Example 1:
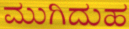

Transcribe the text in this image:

ಮುಗಿದುಹ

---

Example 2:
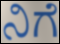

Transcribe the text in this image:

ನಿಗೆ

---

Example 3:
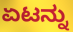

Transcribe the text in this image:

ಏಟನ್ನು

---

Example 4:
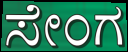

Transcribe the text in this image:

ಸೇಂಗ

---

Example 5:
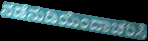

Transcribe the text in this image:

ನಡೆನುಡಿಯಿಂದಾಚರಿಸಿ